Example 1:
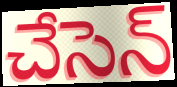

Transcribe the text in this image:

చేసెన్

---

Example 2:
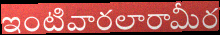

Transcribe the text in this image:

ఇంటివారలారామీర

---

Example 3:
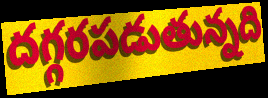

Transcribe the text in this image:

దగ్గరపడుతున్నది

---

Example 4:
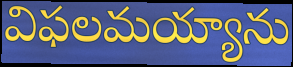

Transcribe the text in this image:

విఫలమయ్యాను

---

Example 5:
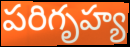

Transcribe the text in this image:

పరిగృహ్య